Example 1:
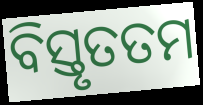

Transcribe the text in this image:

ବିସ୍ତୃତତମ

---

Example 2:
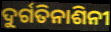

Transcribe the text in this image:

ଦୁର୍ଗତିନାଶିନୀ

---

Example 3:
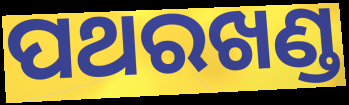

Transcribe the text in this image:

ପଥରଖଣ୍ଡ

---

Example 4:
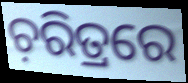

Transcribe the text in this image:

ଚ଼ରିତ୍ରରେ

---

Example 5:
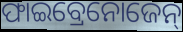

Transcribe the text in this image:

ଫାଇବ୍ରେନୋଜେନ୍